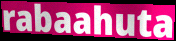
rabaahuta